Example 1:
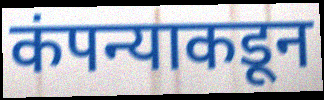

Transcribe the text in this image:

कंपन्याकडून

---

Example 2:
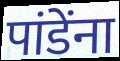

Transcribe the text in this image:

पांडेंना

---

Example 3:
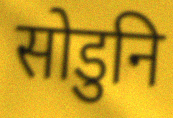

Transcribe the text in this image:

सोडुनि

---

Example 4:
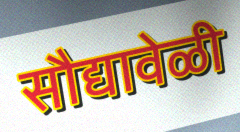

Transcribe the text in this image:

सौद्यावेळी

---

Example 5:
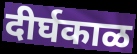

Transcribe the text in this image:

दीर्घकाळ